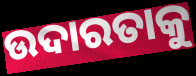
ଉଦାରତାକୁ